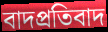
বাদপ্রতিবাদ